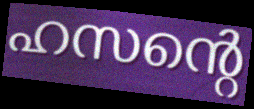
ഹസന്റെ